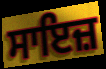
ਸਾਇਜ਼